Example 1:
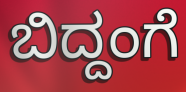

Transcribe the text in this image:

ಬಿದ್ದಂಗೆ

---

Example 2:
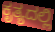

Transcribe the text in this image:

ಕೃತ್ಯದಲ್ಲಿ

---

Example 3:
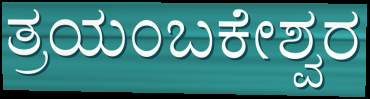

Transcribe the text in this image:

ತ್ರಯಂಬಕೇಶ್ವರ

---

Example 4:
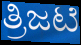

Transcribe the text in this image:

ತ್ರಿಜಟೆ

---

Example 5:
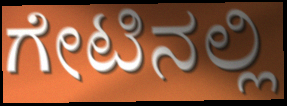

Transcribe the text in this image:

ಗೇಟಿನಲ್ಲಿ